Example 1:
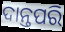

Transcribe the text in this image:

ଦାନ୍ତପରି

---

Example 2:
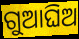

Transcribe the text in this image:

ଗୁଆଘିଅ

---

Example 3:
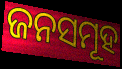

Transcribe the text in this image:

ଜନସମୂହ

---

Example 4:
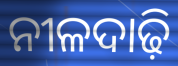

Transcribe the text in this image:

ନୀଳଦାଢ଼ି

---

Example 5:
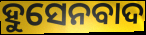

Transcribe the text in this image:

ହୁସେନବାଦ